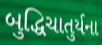
બુદ્ધિચાતુર્યના